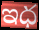
ఇధ